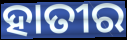
ହାତୀର